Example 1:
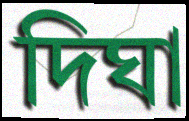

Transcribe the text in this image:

দিঘা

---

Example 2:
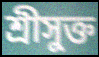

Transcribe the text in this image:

শ্রীসুক্ত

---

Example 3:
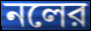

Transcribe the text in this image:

নলের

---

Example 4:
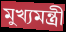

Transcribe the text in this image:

মুখ্যমন্ত্রী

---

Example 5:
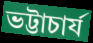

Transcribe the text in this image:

ভট্টাচার্য